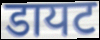
डायट